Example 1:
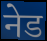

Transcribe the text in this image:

नेड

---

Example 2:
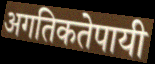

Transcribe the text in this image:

अगतिकतेपायी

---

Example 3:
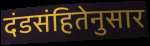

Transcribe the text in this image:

दंडसंहितेनुसार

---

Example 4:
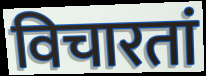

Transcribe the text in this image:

विचारतां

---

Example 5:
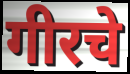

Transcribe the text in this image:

गीरचे